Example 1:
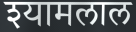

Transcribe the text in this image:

श्यामलाल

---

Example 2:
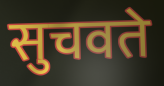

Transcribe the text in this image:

सुचवते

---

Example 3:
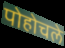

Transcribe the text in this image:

पोहोचले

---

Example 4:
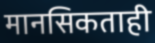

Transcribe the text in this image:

मानसिकताही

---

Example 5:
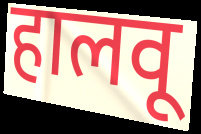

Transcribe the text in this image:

हालवू